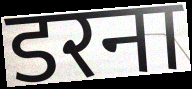
डरना